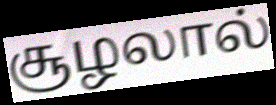
சூழலால்